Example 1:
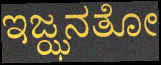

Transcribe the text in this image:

ಇಜ್ಝನತೋ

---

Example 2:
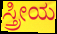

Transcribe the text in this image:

ಸ್ತ್ರೀಯ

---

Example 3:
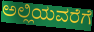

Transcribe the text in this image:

ಅಲ್ಲಿಯವರೆಗೆ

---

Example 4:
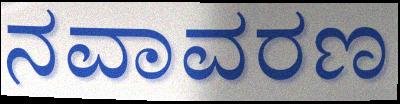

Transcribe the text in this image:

ನವಾವರಣ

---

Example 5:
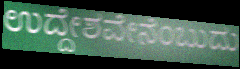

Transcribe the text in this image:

ಉದ್ದೇಶವೇನೆಂಬುದು